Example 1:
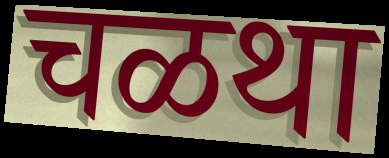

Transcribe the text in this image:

चळथा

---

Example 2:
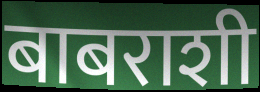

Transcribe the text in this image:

बाबराशी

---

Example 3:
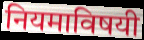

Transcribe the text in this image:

नियमाविषयी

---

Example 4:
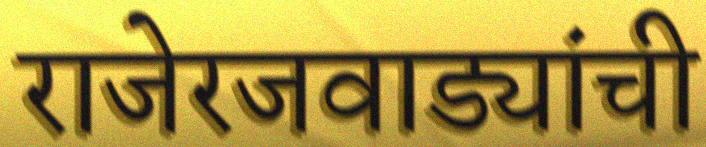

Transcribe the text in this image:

राजेरजवाड्यांची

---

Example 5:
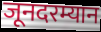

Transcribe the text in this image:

जूनदरम्यान